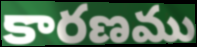
కారణము